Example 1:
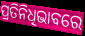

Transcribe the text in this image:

ପ୍ରତିନିଧିଭାବରେ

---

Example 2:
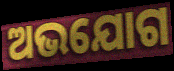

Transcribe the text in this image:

ଅଭଯୋଗ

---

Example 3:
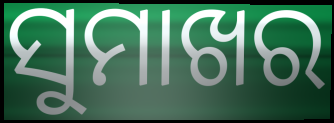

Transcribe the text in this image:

ସୁମାଖର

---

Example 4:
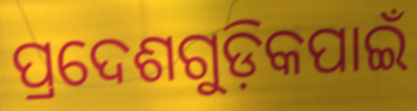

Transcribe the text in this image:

ପ୍ରଦେଶଗୁଡ଼ିକପାଇଁ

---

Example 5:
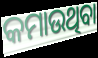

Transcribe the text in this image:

କମାଉଥିବା